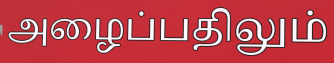
அழைப்பதிலும்